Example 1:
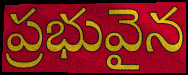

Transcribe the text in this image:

ప్రభువైన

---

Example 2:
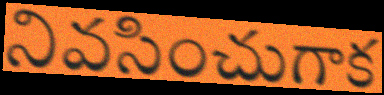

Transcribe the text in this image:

నివసించుగాక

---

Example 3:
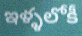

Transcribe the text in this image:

ఇళ్ళలోకీ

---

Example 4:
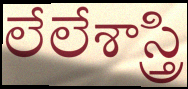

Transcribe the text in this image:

లేలేశాస్త్రి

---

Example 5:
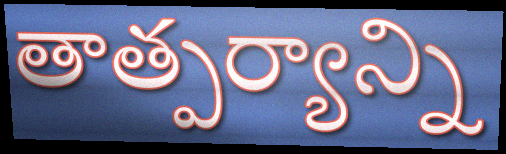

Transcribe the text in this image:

తాత్పర్యాన్ని